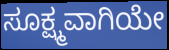
ಸೂಕ್ಷ್ಮವಾಗಿಯೇ